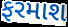
ફરમાશ